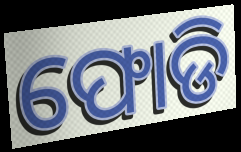
ଫୋଡି